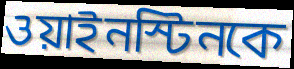
ওয়াইনস্টিনকে